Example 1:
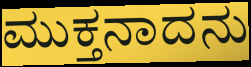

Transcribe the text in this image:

ಮುಕ್ತನಾದನು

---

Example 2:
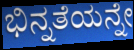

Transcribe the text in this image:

ಭಿನ್ನತೆಯನ್ನೇ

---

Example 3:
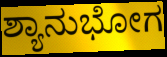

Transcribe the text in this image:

ಶ್ಯಾನುಭೋಗ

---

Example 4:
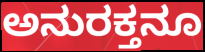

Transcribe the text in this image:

ಅನುರಕ್ತನೂ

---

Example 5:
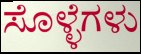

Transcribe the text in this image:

ಸೊಳ್ಳೆಗಳು